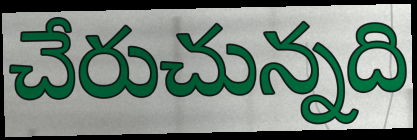
చేరుచున్నది